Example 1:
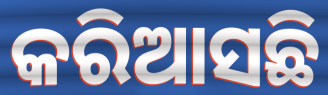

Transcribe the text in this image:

କରିଆସଛି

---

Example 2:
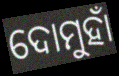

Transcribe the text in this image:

ଦୋମୁହାଁ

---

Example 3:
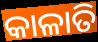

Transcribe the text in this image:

କାଳାତି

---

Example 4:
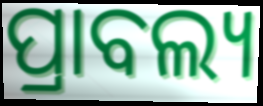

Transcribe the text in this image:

ପ୍ରାବଲ୍ୟ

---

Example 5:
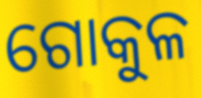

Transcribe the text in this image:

ଗୋକୁଳ